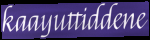
kaayuttiddene